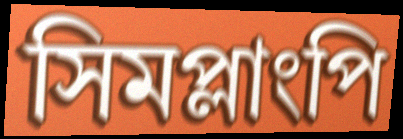
সিমপ্লাংপি